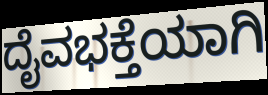
ದೈವಭಕ್ತೆಯಾಗಿ